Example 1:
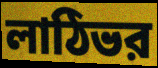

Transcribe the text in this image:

লাঠিভর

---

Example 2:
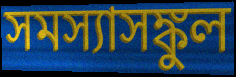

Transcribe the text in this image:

সমস্যাসঙ্কুল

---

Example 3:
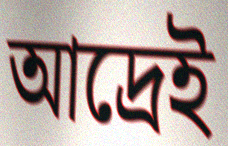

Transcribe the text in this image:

আদ্রেই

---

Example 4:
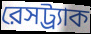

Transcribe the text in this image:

রেসট্র্যাক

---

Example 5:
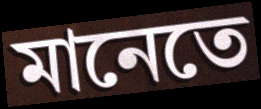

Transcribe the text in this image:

মানেতে